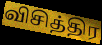
விசித்திர